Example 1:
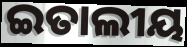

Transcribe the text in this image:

ଇତାଲୀୟ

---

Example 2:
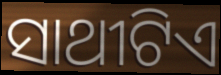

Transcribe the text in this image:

ସାଥୀଟିଏ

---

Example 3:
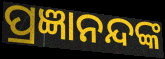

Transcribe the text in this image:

ପ୍ରଜ୍ଞାନନ୍ଦଙ୍କ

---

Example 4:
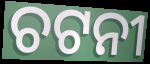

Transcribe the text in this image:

ଚଟନୀ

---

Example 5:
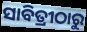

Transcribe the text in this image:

ସାବିତ୍ରୀଠାରୁ